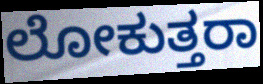
ಲೋಕುತ್ತರಾ